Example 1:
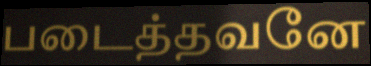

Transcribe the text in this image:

படைத்தவனே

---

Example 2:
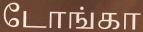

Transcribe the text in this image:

டோங்கா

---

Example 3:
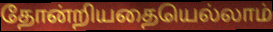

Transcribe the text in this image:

தோன்றியதையெல்லாம்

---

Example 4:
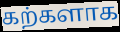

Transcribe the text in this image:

கற்களாக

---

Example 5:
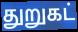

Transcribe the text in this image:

துறுகட்